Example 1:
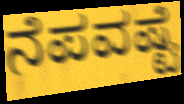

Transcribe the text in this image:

ನೆಪವಷ್ಟೆ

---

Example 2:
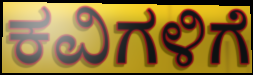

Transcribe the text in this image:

ಕವಿಗಳಿಗೆ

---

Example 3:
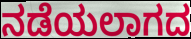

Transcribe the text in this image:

ನಡೆಯಲಾಗದ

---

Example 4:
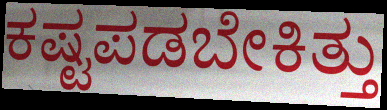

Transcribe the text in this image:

ಕಷ್ಟಪಡಬೇಕಿತ್ತು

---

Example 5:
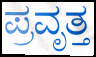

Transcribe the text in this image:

ಪ್ರವೃತ್ತ